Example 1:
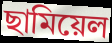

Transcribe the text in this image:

ছামিয়েল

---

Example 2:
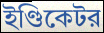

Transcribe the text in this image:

ইণ্ডিকেটর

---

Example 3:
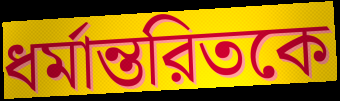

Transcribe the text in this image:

ধর্মান্তরিতকে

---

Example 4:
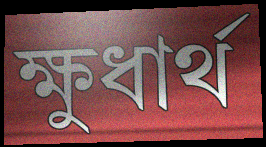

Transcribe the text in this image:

ক্ষুধার্থ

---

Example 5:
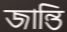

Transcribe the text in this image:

জান্তি